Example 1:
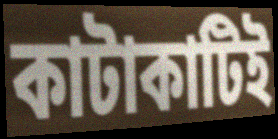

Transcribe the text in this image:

কাটাকাটিই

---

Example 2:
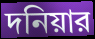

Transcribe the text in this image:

দনিয়ার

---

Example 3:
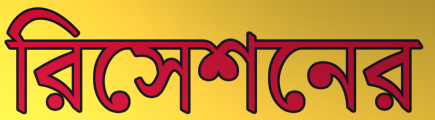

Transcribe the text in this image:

রিসেশনের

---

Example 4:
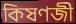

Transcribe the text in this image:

কিষণজী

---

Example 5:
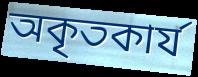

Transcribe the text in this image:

অকৃতকার্য